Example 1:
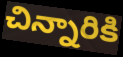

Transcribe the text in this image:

చిన్నారికి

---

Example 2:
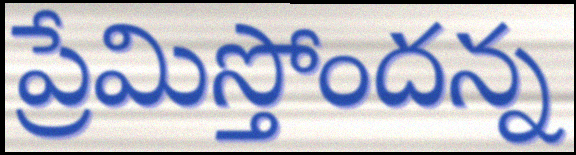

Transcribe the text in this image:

ప్రేమిస్తోందన్న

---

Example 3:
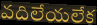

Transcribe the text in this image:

వదిలేయలేక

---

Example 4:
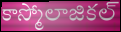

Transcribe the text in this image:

కాస్మోలాజికల్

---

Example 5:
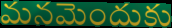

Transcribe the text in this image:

మనమెందుకు